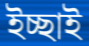
ইচ্ছাই